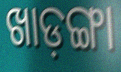
ଖାଡ଼ଙ୍ଗା